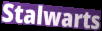
Stalwarts